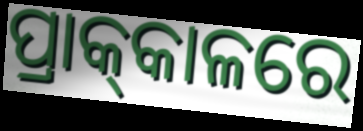
ପ୍ରାକ୍‍କାଳରେ